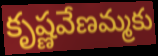
కృష్ణవేణమ్మకు